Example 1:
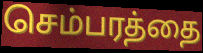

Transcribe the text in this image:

செம்பரத்தை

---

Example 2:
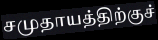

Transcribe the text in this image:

சமுதாயத்திற்குச்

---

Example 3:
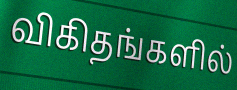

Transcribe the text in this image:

விகிதங்களில்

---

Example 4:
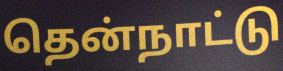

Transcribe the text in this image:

தென்நாட்டு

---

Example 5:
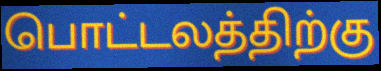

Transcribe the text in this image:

பொட்டலத்திற்கு